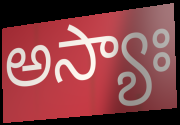
అస్యాః